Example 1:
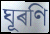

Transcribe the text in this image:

ঘূৰণি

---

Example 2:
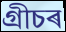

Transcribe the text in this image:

গ্ৰীচৰ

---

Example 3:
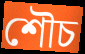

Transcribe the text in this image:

শৌচ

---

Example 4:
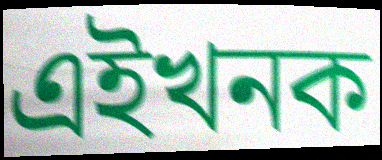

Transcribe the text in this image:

এইখনক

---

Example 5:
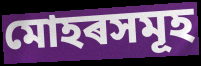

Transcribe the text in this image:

মোহৰসমূহ